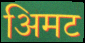
अिमट